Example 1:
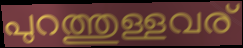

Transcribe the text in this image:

പുറത്തുള്ളവര്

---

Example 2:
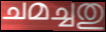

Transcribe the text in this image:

ചമച്ചതു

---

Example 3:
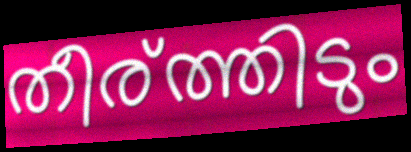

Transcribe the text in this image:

തീര്ത്തിടും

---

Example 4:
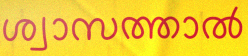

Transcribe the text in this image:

ശ്വാസത്താൽ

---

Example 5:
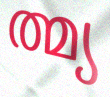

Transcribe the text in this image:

ത്മ്യ